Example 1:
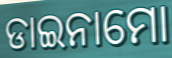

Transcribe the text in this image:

ଡାଇନାମୋ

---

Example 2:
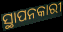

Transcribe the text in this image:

ସ୍ଥାପନକାରୀ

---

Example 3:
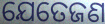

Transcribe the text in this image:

ଯେତେଜଣ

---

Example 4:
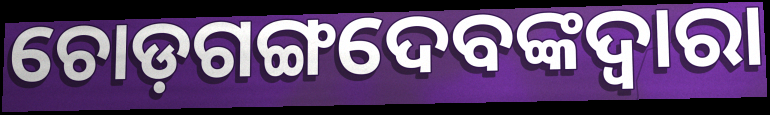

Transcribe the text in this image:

ଚୋଡ଼ଗଙ୍ଗଦେବଙ୍କଦ୍ୱାରା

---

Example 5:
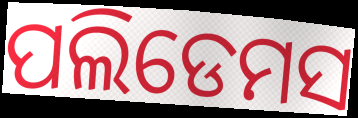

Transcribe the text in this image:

ପଲିଡେମସ